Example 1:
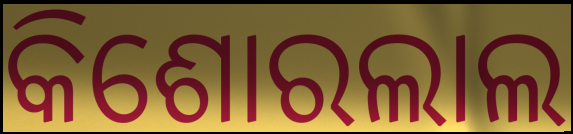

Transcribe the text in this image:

କିଶୋରଲାଲ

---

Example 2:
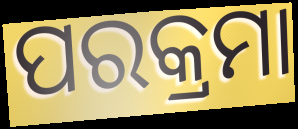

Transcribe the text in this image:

ପରକ୍ରମା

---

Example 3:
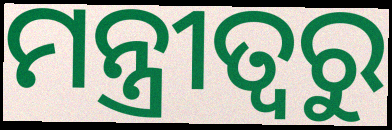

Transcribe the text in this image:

ମନ୍ତ୍ରୀତ୍ୱରୁ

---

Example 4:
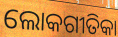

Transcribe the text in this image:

ଲୋକଗୀତିକା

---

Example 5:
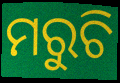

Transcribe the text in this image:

ମରୁଚି